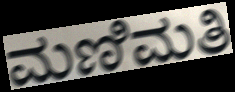
ಮಣಿಮತಿ